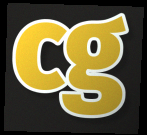
cg